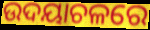
ଉଦୟାଚଳରେ